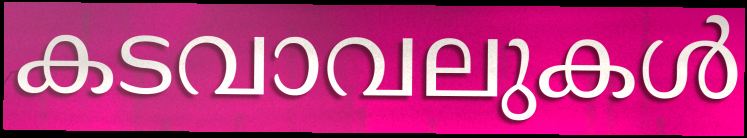
കടവാവലുകൾ